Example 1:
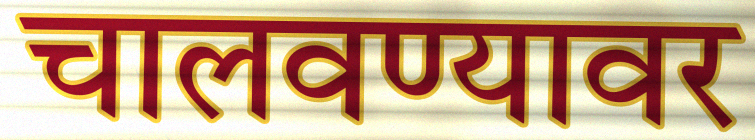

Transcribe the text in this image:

चालवण्यावर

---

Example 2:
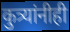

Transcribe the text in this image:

कुत्र्यांनीही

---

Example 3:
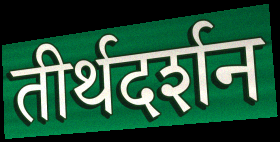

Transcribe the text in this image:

तीर्थदर्शन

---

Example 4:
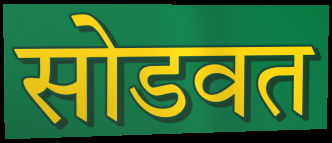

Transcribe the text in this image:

सोडवत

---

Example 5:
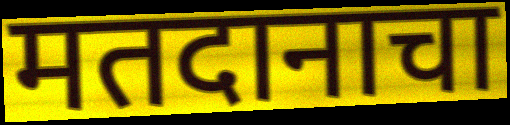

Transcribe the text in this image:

मतदानाचा